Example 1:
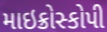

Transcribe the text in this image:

માઇક્રોસ્કોપી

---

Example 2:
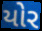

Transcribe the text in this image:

યોર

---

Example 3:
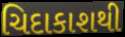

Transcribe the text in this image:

ચિદાકાશથી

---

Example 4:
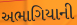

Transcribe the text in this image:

અભાગિયાની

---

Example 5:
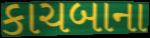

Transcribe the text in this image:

કાચબાના